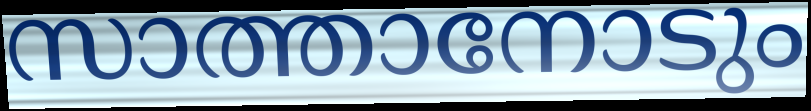
സാത്താനോടും